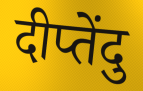
दीप्तेंदु